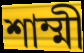
শাম্মী